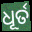
ଧୂର୍ତ